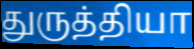
துருத்தியா